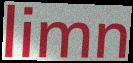
limn